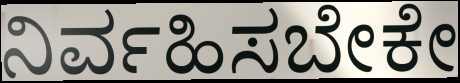
ನಿರ್ವಹಿಸಬೇಕೇ